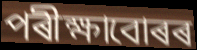
পৰীক্ষাবোৰৰ